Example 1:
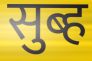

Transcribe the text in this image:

सुब्ह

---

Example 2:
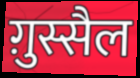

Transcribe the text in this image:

ग़ुस्सैल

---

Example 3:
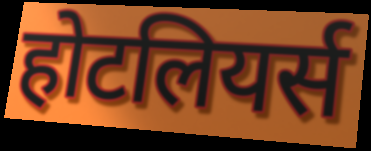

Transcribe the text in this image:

होटलियर्स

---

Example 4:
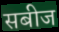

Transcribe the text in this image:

सबीज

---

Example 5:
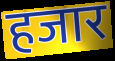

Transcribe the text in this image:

हजार